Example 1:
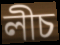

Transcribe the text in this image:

লীচ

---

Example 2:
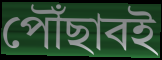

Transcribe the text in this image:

পৌঁছাবই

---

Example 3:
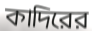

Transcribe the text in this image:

কাদিরের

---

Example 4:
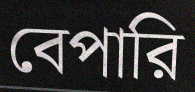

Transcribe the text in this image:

বেপারি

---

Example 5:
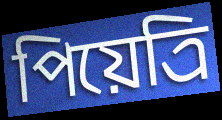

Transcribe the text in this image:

পিয়েত্রি